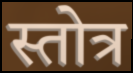
स्तोत्र